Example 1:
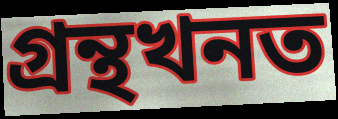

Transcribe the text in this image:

গ্ৰন্থখনত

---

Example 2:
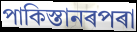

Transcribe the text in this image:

পাকিস্তানৰপৰা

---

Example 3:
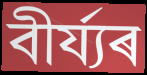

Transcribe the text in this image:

বীৰ্য্যৰ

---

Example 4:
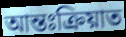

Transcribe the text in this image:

আন্তঃক্ৰিয়াত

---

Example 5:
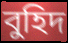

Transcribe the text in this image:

বুহিদ